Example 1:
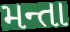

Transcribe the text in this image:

મન્તા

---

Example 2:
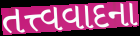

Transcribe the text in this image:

તત્ત્વવાદના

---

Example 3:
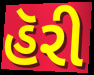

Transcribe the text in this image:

હૅરી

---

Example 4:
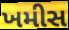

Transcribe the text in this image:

ખમીસ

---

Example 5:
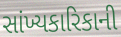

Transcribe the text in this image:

સાંખ્યકારિકાની